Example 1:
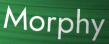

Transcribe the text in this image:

Morphy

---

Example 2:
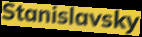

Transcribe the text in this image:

Stanislavsky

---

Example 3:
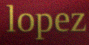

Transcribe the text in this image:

lopez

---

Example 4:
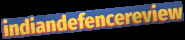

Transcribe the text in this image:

indiandefencereview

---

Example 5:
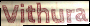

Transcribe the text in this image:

Vithura